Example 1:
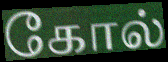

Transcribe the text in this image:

கோல்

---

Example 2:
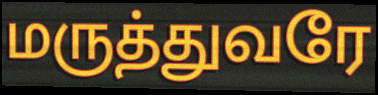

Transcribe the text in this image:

மருத்துவரே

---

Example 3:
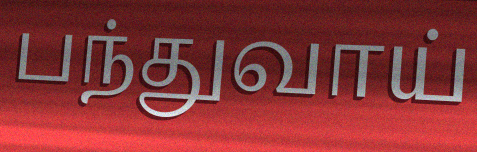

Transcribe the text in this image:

பந்துவாய்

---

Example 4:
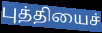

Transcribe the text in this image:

புத்தியைச்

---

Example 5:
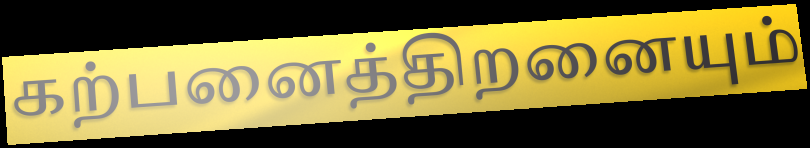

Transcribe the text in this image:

கற்பனைத்திறனையும்